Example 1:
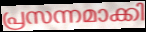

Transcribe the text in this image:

പ്രസന്നമാക്കി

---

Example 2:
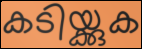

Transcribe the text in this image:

കടിയ്ക്കുക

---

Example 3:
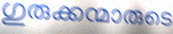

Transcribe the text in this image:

ഗുരുക്കന്മാരുടെ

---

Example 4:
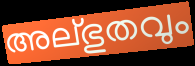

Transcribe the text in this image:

അല്ഭുതവും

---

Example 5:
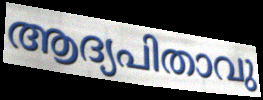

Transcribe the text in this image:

ആദ്യപിതാവു